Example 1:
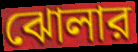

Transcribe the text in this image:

ঝোলার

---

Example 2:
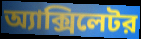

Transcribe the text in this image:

অ্যাক্সিলেটর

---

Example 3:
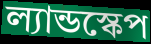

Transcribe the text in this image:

ল্যান্ডস্কেপ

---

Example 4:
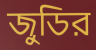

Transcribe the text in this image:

জুডির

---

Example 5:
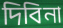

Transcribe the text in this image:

দিবিনা